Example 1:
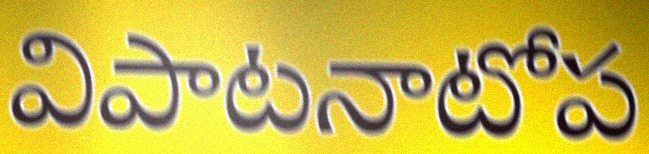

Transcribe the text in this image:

విపాటనాటోప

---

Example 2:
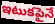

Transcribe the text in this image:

ఇటుకపైనే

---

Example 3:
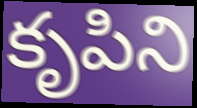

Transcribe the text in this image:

కృపిని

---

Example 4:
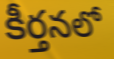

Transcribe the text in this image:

కీర్తనలో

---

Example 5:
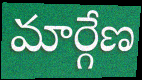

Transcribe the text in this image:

మార్గేణ